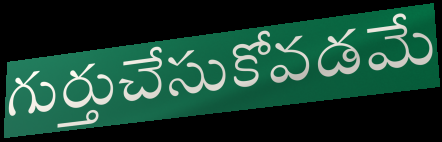
గుర్తుచేసుకోవడమే